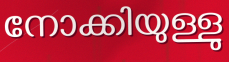
നോക്കിയുള്ളു